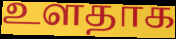
உளதாக